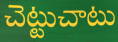
చెట్టుచాటు